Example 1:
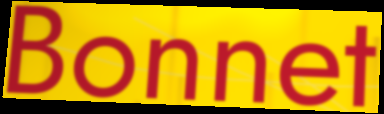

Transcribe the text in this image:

Bonnet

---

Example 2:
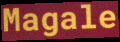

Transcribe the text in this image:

Magale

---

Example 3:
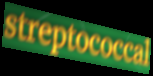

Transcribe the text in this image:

streptococcal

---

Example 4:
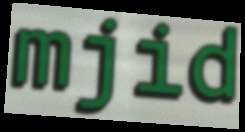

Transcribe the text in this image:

mjid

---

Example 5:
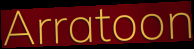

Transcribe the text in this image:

Arratoon